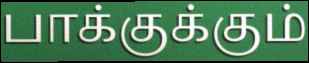
பாக்குக்கும்